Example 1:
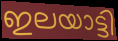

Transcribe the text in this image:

ഇലയാട്ടി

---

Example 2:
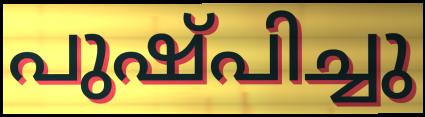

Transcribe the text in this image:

പുഷ്പിച്ചു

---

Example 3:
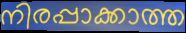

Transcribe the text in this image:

നിരപ്പാക്കാത്ത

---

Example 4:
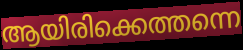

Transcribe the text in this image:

ആയിരിക്കെത്തന്നെ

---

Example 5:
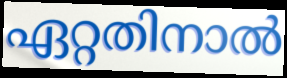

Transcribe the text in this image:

ഏറ്റതിനാൽ